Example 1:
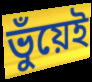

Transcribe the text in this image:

ভুঁয়েই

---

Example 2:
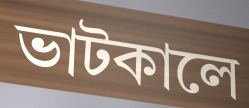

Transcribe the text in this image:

ভাটকালে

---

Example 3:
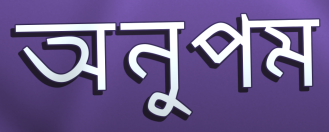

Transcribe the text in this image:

অনুপম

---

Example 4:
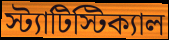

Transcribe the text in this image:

স্ট্যাটিস্টিক্যাল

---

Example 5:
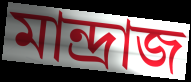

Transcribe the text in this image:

মান্দ্রাজ